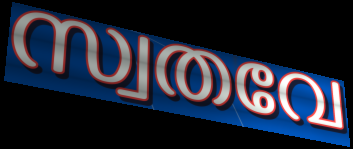
സ്വതവേ